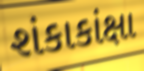
શંકાકાંક્ષા